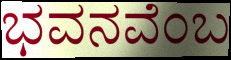
ಭವನವೆಂಬ